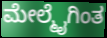
ಮೇಲ್ಮೈಗಿಂತ